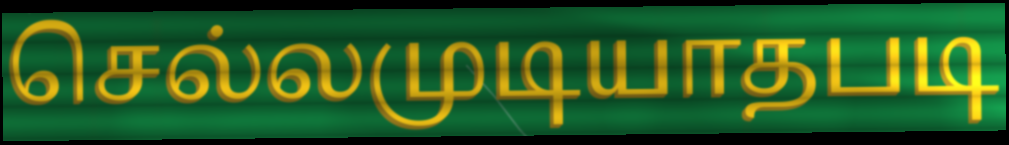
செல்லமுடியாதபடி